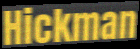
Hickman